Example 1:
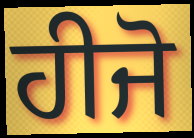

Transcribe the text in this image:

ਹੀਜੋ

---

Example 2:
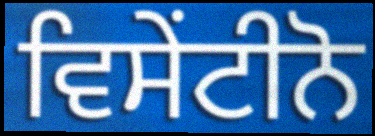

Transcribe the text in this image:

ਵਿਸੇਂਟੀਨੋ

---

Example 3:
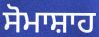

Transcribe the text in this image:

ਸੋਮਾਸ਼ਾਹ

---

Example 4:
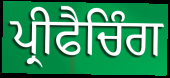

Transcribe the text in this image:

ਪ੍ਰੀਫੈਚਿੰਗ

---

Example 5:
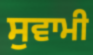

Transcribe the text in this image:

ਸੁਵਾਮੀ